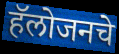
हॅलोजनचे